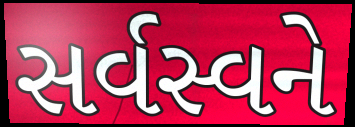
સર્વસ્વને